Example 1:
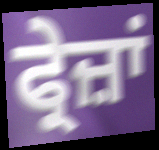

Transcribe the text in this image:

ਫ੍ਰੇਜ਼ਾਂ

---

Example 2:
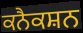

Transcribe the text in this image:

ਕਨੈਕਸ਼ਨ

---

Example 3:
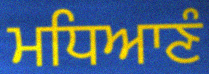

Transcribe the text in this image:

ਮਧਿਆਣੰ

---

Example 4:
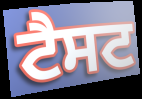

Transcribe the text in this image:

ਟੈਸਟ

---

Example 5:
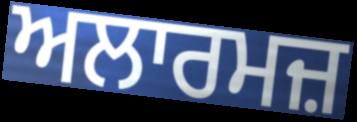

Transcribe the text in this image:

ਅਲਾਰਮਜ਼